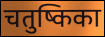
चतुष्किका